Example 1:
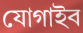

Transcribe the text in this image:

যোগাইব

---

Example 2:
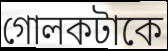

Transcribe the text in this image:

গোলকটাকে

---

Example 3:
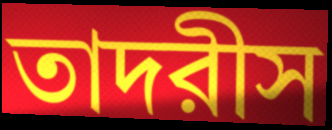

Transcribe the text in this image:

তাদরীস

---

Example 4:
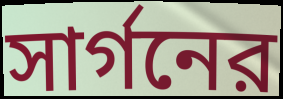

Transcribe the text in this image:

সার্গনের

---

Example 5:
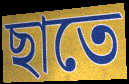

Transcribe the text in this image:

ছাতে